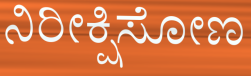
ನಿರೀಕ್ಷಿಸೋಣ